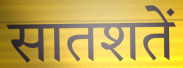
सातशतें